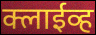
क्लाईव्ह